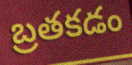
బ్రతకడం